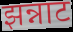
झन्नाट